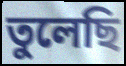
তুলেছি